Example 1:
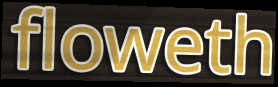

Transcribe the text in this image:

floweth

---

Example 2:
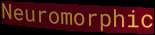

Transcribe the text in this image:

Neuromorphic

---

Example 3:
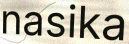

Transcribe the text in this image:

nasika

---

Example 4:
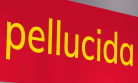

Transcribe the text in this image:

pellucida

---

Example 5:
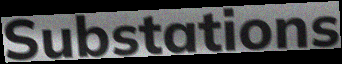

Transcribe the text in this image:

Substations